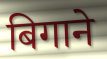
बिगाने